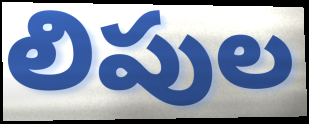
లిపుల